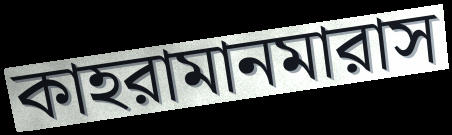
কাহরামানমারাস